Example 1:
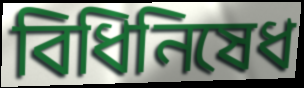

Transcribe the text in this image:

বিধিনিষেধ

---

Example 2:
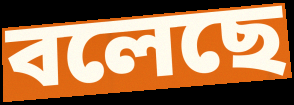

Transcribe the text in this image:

বলেছে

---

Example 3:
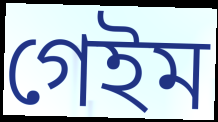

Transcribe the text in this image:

গেইম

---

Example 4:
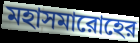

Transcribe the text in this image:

মহাসমারোহের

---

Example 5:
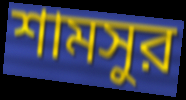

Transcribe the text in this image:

শামসুর